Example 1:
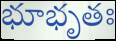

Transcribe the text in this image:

భూభృతః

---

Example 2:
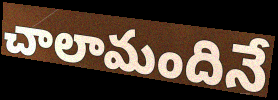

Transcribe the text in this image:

చాలామందినే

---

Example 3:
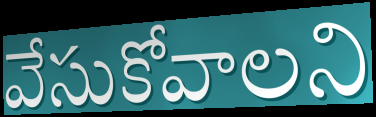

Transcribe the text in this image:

వేసుకోవాలని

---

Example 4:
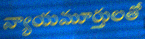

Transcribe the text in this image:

న్యాయమూర్తులతో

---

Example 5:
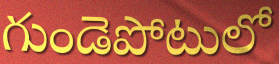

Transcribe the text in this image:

గుండెపోటులో